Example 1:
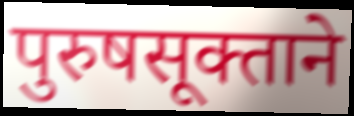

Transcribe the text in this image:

पुरुषसूक्ताने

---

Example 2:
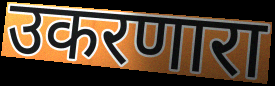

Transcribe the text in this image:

उकरणारा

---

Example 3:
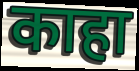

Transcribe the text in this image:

काहा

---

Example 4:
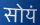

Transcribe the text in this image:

सोयं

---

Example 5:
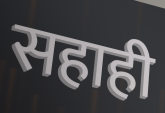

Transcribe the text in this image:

सहाही